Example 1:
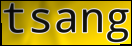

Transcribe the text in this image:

tsang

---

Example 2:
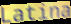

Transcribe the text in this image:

Latina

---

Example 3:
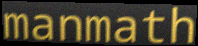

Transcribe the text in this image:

manmath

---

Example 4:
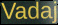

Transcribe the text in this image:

Vadaj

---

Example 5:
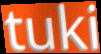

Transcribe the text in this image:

tuki